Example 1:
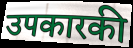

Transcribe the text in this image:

उपकारकी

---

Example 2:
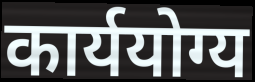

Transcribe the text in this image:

कार्ययोग्य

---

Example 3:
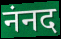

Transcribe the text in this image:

नंनद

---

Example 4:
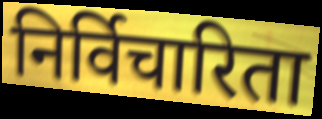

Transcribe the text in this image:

निर्विचारिता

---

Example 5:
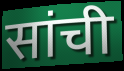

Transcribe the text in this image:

सांची